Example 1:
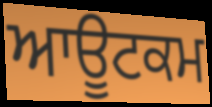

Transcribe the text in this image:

ਆਊਟਕਮ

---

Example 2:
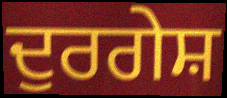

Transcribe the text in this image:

ਦੁਰਗੇਸ਼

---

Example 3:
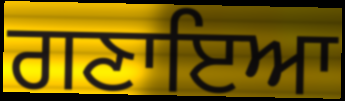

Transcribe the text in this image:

ਗਣਾਇਆ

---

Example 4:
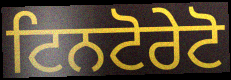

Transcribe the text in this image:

ਟਿਨਟੋਰੇਟੋ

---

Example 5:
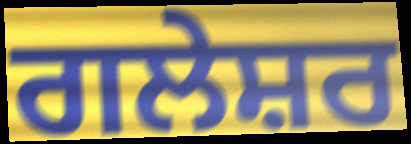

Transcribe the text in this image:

ਗਲੇਸ਼ਰ